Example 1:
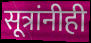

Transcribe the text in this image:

सूत्रांनीही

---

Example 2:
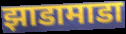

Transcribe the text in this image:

झाडामाडा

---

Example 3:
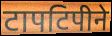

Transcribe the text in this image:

टापटिपीने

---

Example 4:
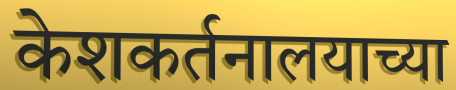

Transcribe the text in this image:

केशकर्तनालयाच्या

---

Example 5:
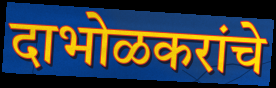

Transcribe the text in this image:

दाभोळकरांचे